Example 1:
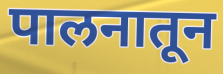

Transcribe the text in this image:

पालनातून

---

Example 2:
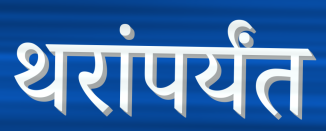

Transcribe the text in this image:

थरांपर्यंत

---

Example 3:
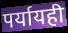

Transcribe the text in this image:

पर्यायही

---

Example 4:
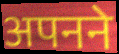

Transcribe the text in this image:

अपनने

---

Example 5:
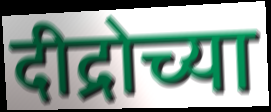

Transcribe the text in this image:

दीद्रोच्या